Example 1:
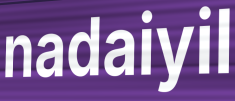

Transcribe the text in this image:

nadaiyil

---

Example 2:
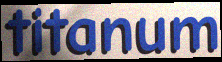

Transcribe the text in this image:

titanum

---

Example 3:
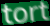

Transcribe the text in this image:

tort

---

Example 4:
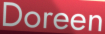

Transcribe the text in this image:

Doreen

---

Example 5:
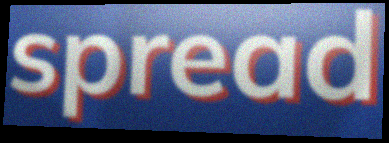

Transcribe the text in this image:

spread